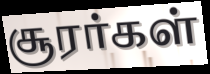
சூரர்கள்